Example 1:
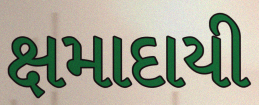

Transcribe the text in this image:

ક્ષમાદાયી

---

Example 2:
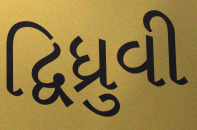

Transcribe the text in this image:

દ્વિધ્રુવી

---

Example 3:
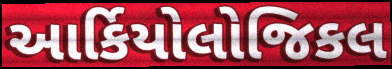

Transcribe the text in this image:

આર્કિયોલોજિકલ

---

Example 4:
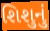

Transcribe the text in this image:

શિશુનું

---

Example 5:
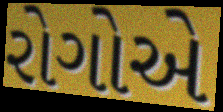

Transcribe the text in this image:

રોગોએ